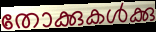
തോക്കുകൾക്കു